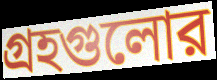
গ্রহগুলোর